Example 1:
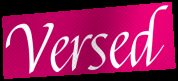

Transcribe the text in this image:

Versed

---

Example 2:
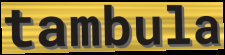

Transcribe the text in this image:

tambula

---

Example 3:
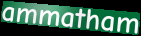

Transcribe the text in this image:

ammatham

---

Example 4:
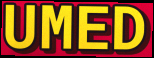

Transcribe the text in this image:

UMED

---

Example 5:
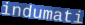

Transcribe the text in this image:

indumati